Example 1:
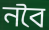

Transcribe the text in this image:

নবৈ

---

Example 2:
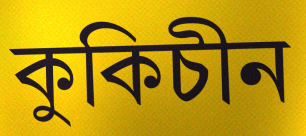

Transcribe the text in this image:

কুকিচীন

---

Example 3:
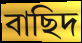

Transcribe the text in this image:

বাছিদ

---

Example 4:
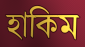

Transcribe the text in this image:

হাকিম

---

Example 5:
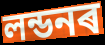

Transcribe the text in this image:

লন্ডনৰ